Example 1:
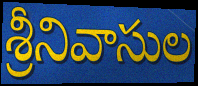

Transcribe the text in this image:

శ్రీనివాసుల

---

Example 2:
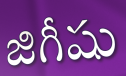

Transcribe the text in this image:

జిగీషు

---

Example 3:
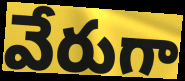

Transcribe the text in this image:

వేరుగా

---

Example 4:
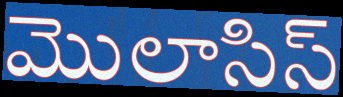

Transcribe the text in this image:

మొలాసిస్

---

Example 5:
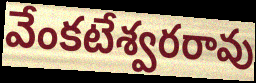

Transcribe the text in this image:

వేంకటేశ్వరరావు